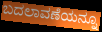
ಬದಲಾವಣೆಯನ್ನೂ